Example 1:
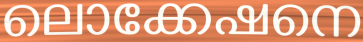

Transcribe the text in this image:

ലൊക്കേഷനെ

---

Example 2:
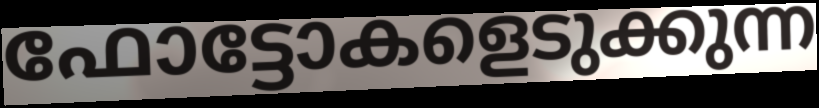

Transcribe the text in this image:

ഫോട്ടോകളെടുക്കുന്ന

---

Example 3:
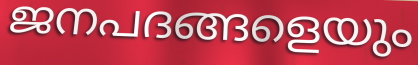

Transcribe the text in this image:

ജനപദങ്ങളെയും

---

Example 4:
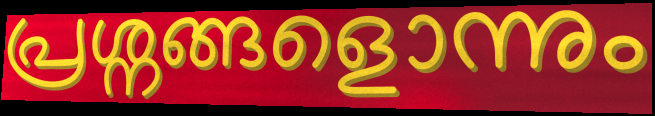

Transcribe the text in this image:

പ്രശ്നങ്ങളൊന്നും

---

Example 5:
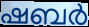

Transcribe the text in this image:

ഷബർ